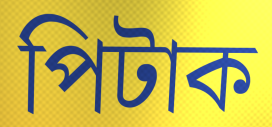
পিটাক